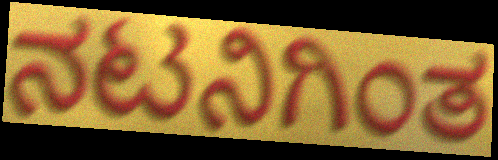
ನಟನಿಗಿಂತ